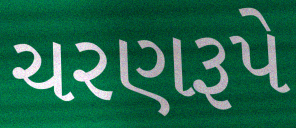
ચરણરૂપે